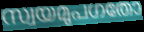
സ്വയമുപഗതോ